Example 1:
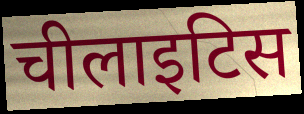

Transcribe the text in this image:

चीलाइटिस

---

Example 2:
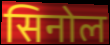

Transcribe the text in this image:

सिनोल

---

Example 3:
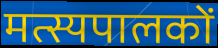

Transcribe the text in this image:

मत्स्यपालकों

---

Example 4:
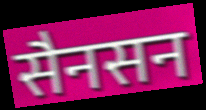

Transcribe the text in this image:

सैनसन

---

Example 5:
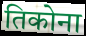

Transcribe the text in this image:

तिकोना